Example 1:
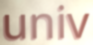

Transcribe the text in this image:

univ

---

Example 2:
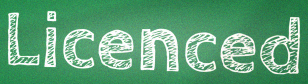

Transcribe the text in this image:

Licenced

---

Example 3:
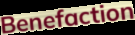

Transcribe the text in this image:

Benefaction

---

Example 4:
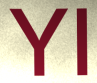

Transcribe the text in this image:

Yl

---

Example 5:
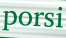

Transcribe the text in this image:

porsi